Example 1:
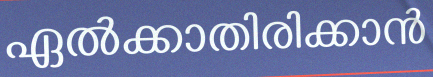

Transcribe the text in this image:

ഏൽക്കാതിരിക്കാൻ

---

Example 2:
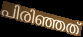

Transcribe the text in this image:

പിരിഞ്ഞത്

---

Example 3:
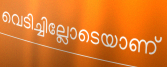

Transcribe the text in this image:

വെടിച്ചില്ലോടെയാണ്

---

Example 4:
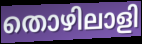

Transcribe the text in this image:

തൊഴിലാളി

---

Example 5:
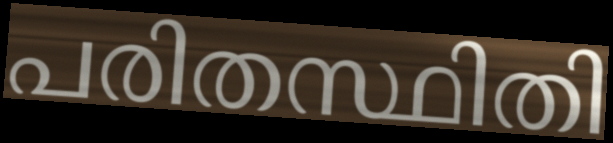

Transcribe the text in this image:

പരിതസ്ഥിതി